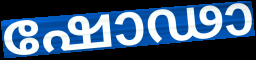
ഷോഢാ